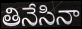
తినేసినా